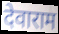
देवाराम